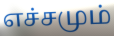
எச்சமும்